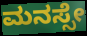
ಮನಸ್ಸೇ